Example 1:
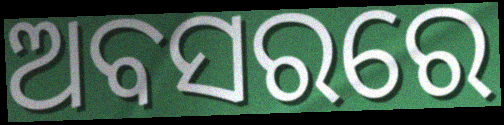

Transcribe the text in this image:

ଅବସରରେ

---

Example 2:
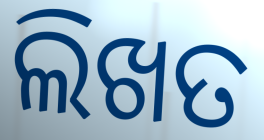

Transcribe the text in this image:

ଲିଖତ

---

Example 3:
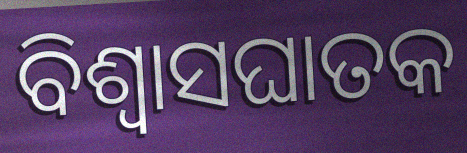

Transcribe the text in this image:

ବିଶ୍ୱାସଘାତକ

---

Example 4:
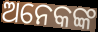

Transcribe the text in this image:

ଅନେକଙ୍କ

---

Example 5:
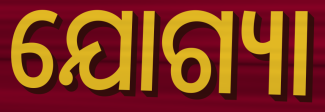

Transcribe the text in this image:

ଯୋଗ୍ୟା